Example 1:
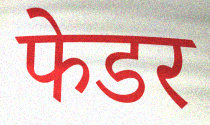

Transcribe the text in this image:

फेडर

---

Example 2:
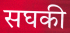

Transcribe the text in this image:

सघकी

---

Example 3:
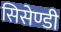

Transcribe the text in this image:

सिसेण्डी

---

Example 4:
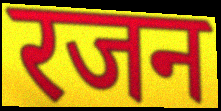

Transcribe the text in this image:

रजन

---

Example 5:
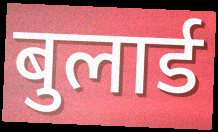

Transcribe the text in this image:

बुलार्ड